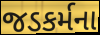
જડકર્મના